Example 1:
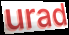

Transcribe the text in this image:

urad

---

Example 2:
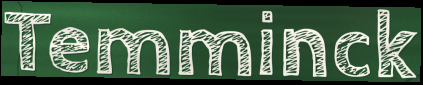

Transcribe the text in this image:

Temminck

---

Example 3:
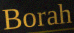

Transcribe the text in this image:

Borah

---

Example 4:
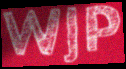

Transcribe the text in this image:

WJP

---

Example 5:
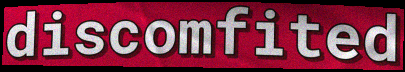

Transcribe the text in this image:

discomfited